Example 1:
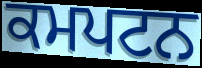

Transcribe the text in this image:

ਕਮਪਟਨ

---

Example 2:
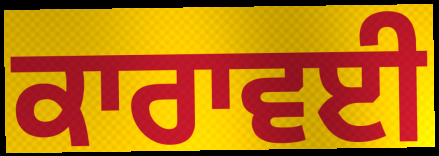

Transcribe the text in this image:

ਕਾਰਾਵਈ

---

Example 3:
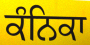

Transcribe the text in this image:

ਕੰਨਿਕਾ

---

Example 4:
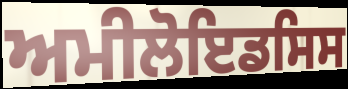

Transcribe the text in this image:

ਅਮੀਲੋਇਡਸਿਸ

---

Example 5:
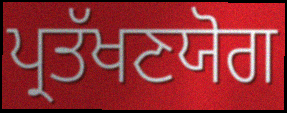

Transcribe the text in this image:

ਪ੍ਰਤੱਖਣਯੋਗ